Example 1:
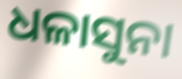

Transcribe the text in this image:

ଧଳାସୁନା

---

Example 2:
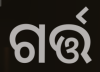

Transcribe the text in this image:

ଗର୍ତ୍ତ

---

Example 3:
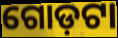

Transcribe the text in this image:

ଗୋଡ଼ଟା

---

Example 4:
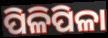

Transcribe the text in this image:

ପିଳିପିଳା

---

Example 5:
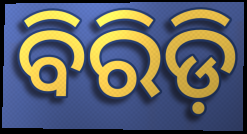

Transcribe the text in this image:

ବିରିଡ଼ି